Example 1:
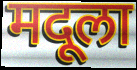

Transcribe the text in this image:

मदूला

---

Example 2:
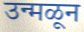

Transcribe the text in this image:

उन्मळून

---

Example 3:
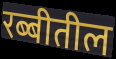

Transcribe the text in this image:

रब्बीतील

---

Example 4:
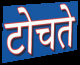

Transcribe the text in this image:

टोचते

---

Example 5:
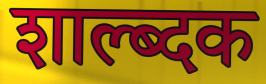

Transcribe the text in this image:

शाल्ब्दक